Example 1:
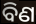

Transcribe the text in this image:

ବିଣ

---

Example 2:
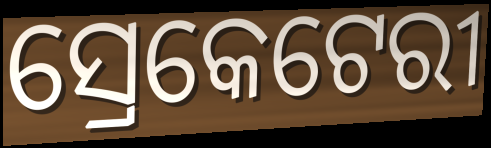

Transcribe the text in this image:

ସ୍ରେକେଟେରୀ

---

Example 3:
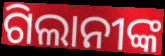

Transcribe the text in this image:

ଗିଲାନୀଙ୍କ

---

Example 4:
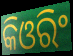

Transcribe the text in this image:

କିଓରିଂ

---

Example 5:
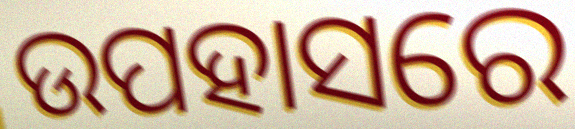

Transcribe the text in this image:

ଉପହାସରେ